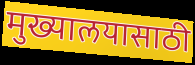
मुख्यालयासाठी